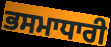
ਭਸਮਾਧਾਰੀ